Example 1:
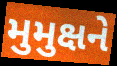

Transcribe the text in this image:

મુમુક્ષને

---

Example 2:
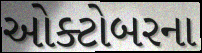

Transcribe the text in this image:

ઓક્ટોબરના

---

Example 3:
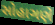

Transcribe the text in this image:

સોહાગણે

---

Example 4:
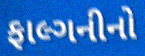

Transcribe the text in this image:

ફાલ્ગનીનો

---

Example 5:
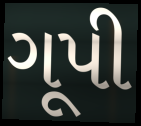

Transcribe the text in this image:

ગૂપી